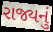
રાજ્યનું